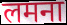
लमना